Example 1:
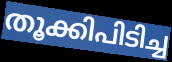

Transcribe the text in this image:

തൂക്കിപിടിച്ച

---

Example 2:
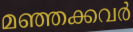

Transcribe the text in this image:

മഞ്ഞക്കവർ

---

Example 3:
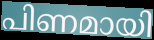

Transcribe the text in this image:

പിണമായി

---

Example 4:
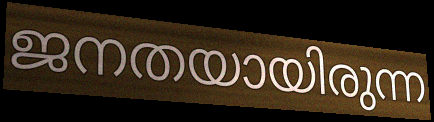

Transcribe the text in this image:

ജനതയായിരുന്ന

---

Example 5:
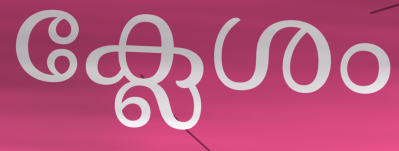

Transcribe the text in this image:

ക്ലേശം